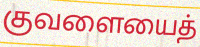
குவளையைத்